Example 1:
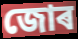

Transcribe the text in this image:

জোৰ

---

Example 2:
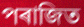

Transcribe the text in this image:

পৰাজিত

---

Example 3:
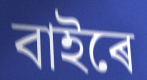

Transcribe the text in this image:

বাইৰে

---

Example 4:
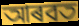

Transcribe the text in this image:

আৰবত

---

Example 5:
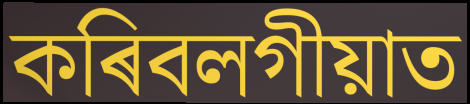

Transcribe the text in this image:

কৰিবলগীয়াত